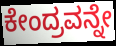
ಕೇಂದ್ರವನ್ನೇ